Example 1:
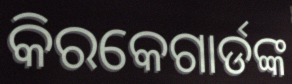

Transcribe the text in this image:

କିରକେଗାର୍ଡଙ୍କ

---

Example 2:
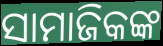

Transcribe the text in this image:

ସାମାଜିକଙ୍କ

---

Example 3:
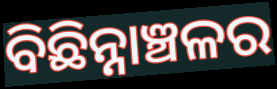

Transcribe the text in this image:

ବିଛିନ୍ନାଞ୍ଚଳର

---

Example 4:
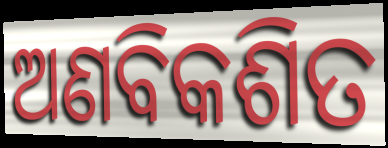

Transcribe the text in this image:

ଅଣବିକଶିତ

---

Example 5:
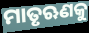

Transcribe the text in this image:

ମାତୃଋଣକୁ